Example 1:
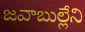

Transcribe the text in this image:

జవాబుల్లేని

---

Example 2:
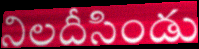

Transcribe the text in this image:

నిలదీసిండు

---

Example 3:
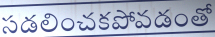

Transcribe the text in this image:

సడలించకపోవడంతో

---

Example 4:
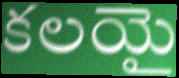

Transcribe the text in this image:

కలయై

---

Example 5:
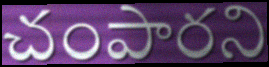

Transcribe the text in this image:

చంపారని